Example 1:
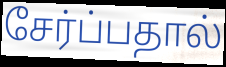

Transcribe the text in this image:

சேர்ப்பதால்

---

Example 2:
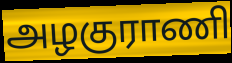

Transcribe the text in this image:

அழகுராணி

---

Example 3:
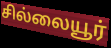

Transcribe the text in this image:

சில்லையூர்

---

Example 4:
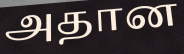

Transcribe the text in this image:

அதான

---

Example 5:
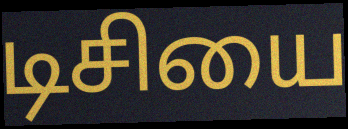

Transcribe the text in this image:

டிசியை